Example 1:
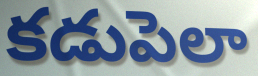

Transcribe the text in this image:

కడుపెలా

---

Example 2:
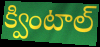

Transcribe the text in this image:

క్వింటాల్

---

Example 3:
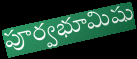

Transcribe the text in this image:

పూర్వభూమిషు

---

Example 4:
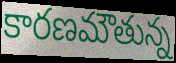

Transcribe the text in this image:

కారణమౌతున్న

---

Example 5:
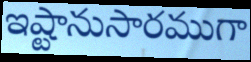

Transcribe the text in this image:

ఇష్టానుసారముగా